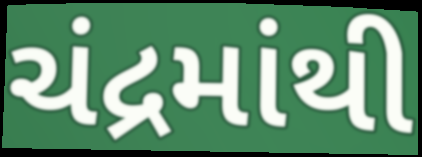
ચંદ્રમાંથી